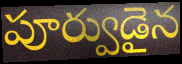
పూర్వుడైన